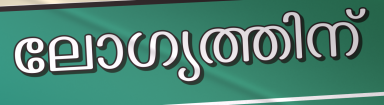
ലോഗ്യത്തിന്